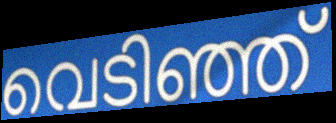
വെടിഞ്ഞ്